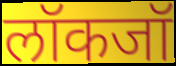
लॉकजॉ